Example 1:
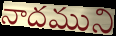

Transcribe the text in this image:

నాదముని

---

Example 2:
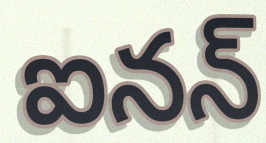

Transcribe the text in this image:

ఐనన్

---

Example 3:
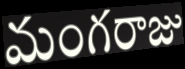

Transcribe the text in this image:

మంగరాజు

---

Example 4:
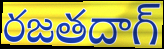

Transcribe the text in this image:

రజతదాగ్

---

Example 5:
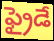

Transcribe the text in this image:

ఫ్రైడే